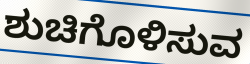
ಶುಚಿಗೊಳಿಸುವ